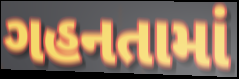
ગહનતામાં